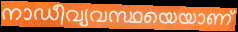
നാഡീവ്യവസ്ഥയെയാണ്